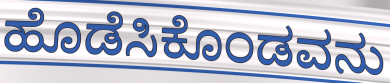
ಹೊಡೆಸಿಕೊಂಡವನು